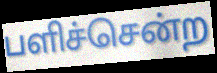
பளிச்சென்ற